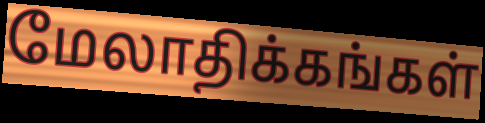
மேலாதிக்கங்கள்